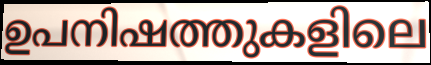
ഉപനിഷത്തുകളിലെ